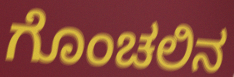
ಗೊಂಚಲಿನ